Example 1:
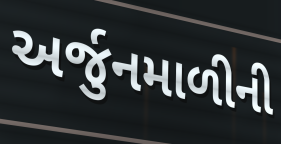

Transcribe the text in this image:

અર્જુનમાળીની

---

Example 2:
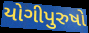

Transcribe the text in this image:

યોગીપુરુષો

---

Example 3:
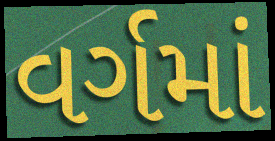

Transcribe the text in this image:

વર્ગમાં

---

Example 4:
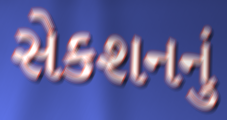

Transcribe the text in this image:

સેકશનનું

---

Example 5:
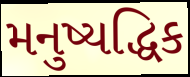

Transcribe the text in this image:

મનુષ્યદ્ધિક